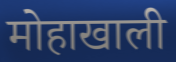
मोहाखाली